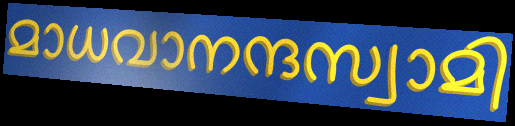
മാധവാനന്ദസ്വാമി